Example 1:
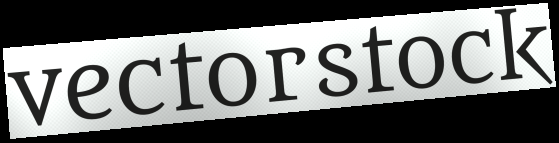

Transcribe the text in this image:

vectorstock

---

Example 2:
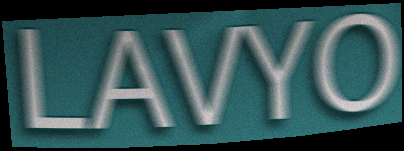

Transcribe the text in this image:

LAVYO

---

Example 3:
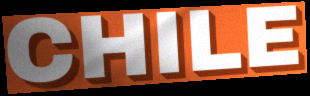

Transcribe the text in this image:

CHILE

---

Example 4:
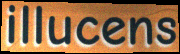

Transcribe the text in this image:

illucens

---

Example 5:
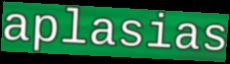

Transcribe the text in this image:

aplasias